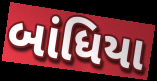
બાંધિયા